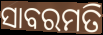
ସାବରମତି